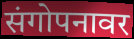
संगोपनावर